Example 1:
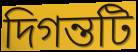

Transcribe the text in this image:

দিগন্তটি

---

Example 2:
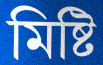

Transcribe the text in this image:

মিষ্টি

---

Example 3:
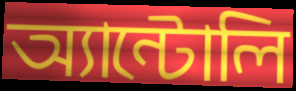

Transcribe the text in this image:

অ্যান্টোলি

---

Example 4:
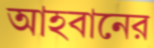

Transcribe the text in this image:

আহবানের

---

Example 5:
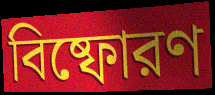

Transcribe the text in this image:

বিষ্ফোরণ